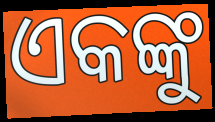
ଏକଙ୍କୁ